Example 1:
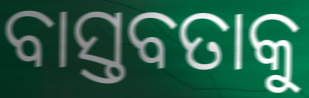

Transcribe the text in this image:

ବାସ୍ତବତାକୁ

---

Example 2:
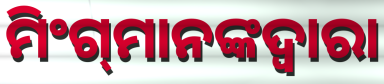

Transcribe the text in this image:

ମିଂଗ୍‍ମାନଙ୍କଦ୍ୱାରା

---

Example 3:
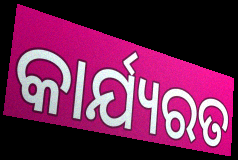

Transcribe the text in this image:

କାର୍ଯ୍ୟରତ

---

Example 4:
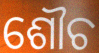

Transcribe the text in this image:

ଶୌଚ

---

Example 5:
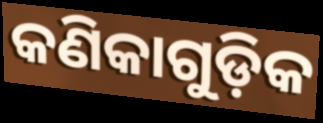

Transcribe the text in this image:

କଣିକାଗୁଡ଼ିକ